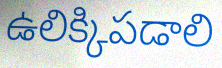
ఉలిక్కిపడాలి